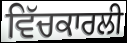
ਵਿੱਚਕਾਰਲੀ